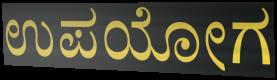
ಉಪಯೋಗ